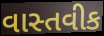
વાસ્તવીક